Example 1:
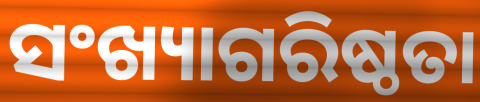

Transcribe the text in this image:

ସଂଖ୍ୟାଗରିଷ୍ଠତା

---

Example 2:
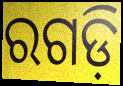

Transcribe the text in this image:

ରଗଡ଼ି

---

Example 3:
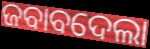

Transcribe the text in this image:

ଜବାବଦେଲା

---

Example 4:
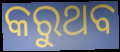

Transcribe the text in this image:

କରୁଥବ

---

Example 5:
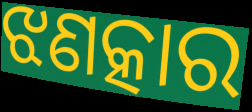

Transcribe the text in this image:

ଝଣତ୍କାର